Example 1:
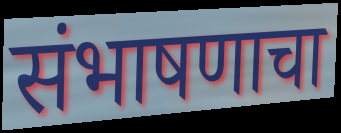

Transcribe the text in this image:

संभाषणाचा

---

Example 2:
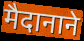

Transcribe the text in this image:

मैदानाने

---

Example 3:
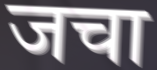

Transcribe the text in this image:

जचा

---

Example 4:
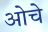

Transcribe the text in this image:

ओचे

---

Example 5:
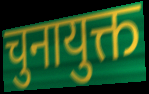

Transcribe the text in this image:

चुनायुक्त